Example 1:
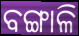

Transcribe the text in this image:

ବଙ୍ଗାଳି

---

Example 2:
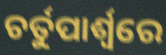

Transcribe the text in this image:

ଚର୍ତୁପାର୍ଶ୍ବରେ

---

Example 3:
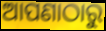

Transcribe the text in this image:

ଆପଣାଠାରୁ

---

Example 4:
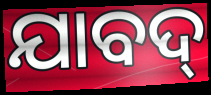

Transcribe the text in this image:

ଯାବଦ୍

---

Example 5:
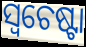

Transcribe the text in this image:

ସ୍ଵଚେଷ୍ଟା